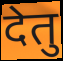
देतु